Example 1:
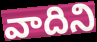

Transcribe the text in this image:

వాదిని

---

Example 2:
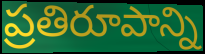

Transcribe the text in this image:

ప్రతిరూపాన్ని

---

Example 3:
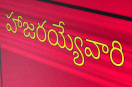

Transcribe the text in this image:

హాజరయ్యేవారి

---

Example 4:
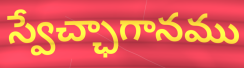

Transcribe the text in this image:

స్వేచ్ఛాగానము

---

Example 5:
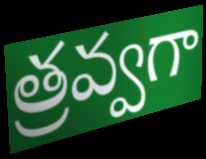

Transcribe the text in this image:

త్రవ్వగా